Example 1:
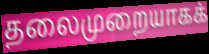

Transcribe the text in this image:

தலைமுறையாகக்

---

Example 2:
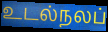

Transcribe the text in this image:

உடல்நலப்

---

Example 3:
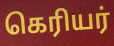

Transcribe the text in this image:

கெரியர்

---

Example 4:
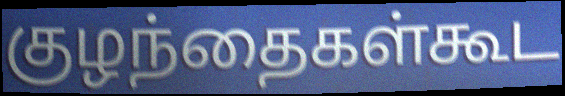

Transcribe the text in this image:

குழந்தைகள்கூட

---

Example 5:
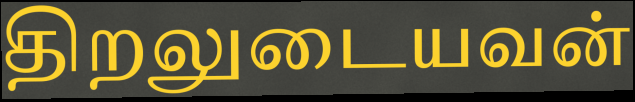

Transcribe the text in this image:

திறலுடையவன்